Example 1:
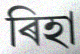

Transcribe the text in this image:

ৰিহা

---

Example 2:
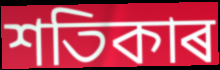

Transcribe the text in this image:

শতিকাৰ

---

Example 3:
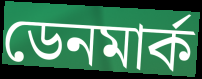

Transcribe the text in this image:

ডেনমাৰ্ক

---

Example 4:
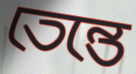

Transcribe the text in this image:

তেন্তে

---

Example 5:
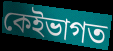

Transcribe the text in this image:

কেইভাগত